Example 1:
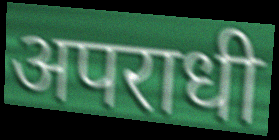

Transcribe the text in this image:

अपराधी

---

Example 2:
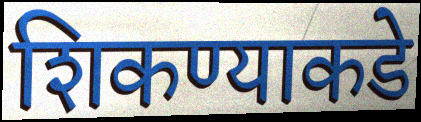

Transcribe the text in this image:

शिकण्याकडे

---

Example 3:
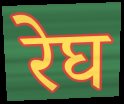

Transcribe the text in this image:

रेघ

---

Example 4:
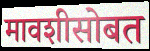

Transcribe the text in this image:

मावशीसोबत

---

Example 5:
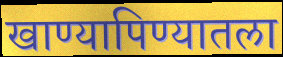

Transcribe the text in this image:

खाण्यापिण्यातला